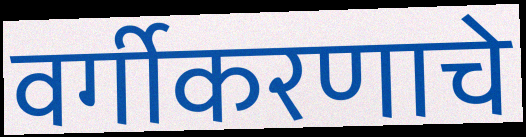
वर्गीकरणाचे